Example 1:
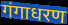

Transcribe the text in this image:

गंगाधरण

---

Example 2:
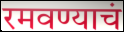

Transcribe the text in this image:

रमवण्याचं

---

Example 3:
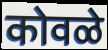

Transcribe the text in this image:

कोवळे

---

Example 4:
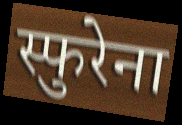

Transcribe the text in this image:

स्फुरेना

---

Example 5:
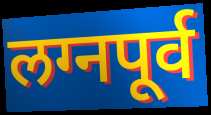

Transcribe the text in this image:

लग्नपूर्व